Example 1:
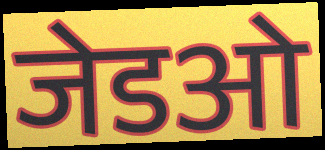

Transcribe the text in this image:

जेडओ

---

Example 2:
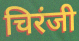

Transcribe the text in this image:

चिरंजी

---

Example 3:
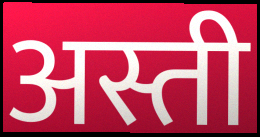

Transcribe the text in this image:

अस्ती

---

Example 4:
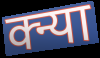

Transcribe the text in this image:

क्न्या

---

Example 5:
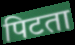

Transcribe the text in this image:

पिटता